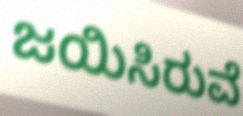
ಜಯಿಸಿರುವೆ